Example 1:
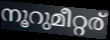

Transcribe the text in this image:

നൂറുമീറ്റര്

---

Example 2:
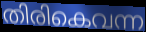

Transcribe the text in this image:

തിരികെവന്ന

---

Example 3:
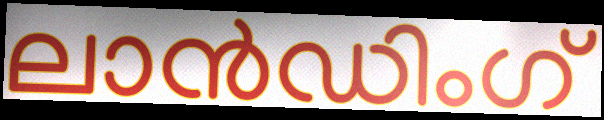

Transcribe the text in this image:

ലാൻഡിംഗ്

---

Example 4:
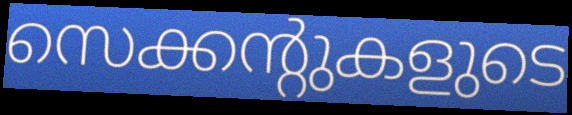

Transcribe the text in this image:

സെക്കന്റുകളുടെ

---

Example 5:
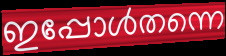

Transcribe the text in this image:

ഇപ്പോൾതന്നെ